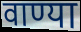
वाण्या